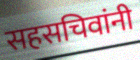
सहसचिवांनी